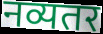
नव्यतर